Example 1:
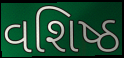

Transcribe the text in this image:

વશિષ્ઠ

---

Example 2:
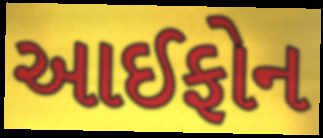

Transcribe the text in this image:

આઈફોન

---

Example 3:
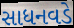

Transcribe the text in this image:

સાધનવડે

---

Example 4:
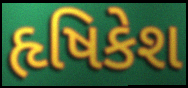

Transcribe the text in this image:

હૃષિકેશ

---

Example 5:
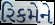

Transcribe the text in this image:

રિકમેને